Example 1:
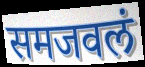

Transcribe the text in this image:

समजवलं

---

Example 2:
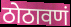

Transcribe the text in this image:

ठोठावणं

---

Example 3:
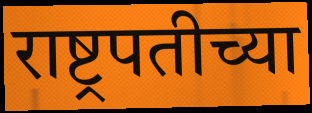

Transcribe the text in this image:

राष्ट्रपतीच्या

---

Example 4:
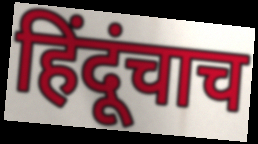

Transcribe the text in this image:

हिंदूंचाच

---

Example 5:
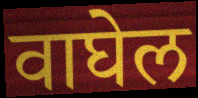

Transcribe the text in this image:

वाघेल